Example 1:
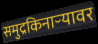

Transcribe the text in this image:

समुद्रकिनाऱ्यावर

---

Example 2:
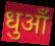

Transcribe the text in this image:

धुआँ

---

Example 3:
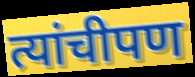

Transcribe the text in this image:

त्यांचीपण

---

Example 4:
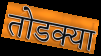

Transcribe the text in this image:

तोडक्या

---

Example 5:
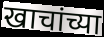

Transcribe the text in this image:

खाचांच्या